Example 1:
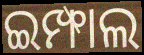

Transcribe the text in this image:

ଇମ୍ଫାଲ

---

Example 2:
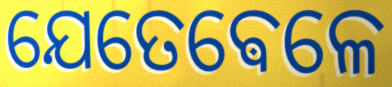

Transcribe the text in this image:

ଯେତେଵେଳେ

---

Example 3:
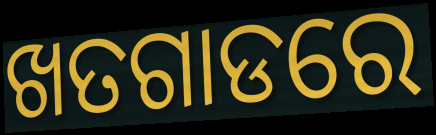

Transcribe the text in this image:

ଖତଗାଡରେ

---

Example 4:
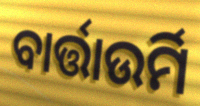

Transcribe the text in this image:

ବାର୍ତ୍ତାଉର୍ମି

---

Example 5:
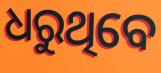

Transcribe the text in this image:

ଧରୁଥିବେ